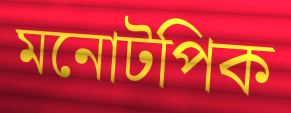
মনোটপিক